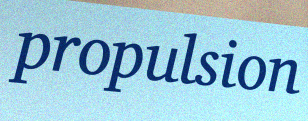
propulsion